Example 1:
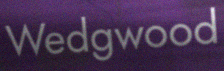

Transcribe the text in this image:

Wedgwood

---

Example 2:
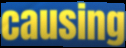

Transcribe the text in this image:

causing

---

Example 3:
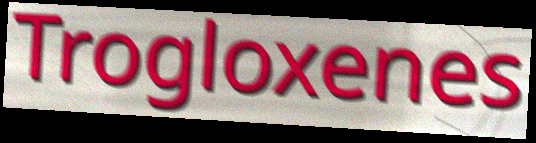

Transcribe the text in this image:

Trogloxenes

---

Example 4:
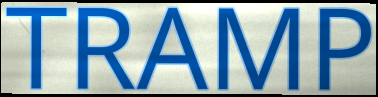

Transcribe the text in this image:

TRAMP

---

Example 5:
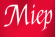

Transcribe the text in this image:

Miep